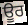
ਊਰ